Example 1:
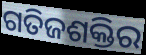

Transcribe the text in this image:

ଗତିଜଶକ୍ତିର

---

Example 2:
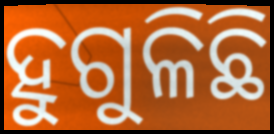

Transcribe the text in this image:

ହୁଗୁଳିଛି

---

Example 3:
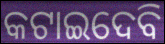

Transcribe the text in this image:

କଟାଇଦେବି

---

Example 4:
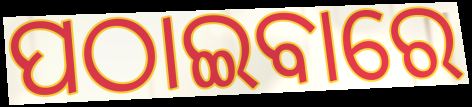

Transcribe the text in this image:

ପଠାଇବାରେ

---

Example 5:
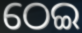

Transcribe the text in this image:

ଠେଇ